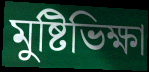
মুষ্টিভিক্ষা